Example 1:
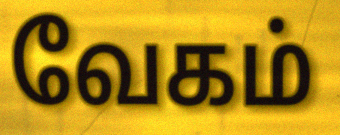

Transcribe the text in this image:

வேகம்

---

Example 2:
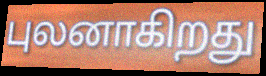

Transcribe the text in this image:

புலனாகிறது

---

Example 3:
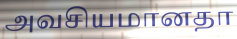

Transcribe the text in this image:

அவசியமானதா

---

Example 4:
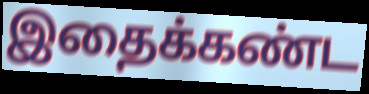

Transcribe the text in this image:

இதைக்கண்ட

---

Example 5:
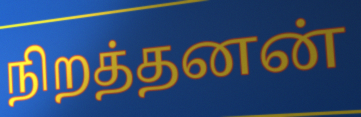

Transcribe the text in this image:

நிறத்தனன்